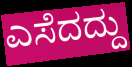
ಎಸೆದದ್ದು